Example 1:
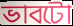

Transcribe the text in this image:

ভাবটো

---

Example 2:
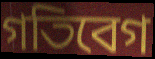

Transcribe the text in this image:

গতিবেগ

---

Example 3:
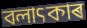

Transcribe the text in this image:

বলাৎকাৰ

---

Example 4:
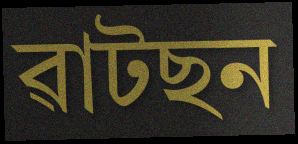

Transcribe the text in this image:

ৱাটছন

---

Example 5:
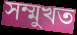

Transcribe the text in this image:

সম্মুখত